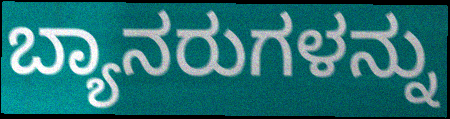
ಬ್ಯಾನರುಗಳನ್ನು